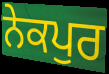
ਨੇਕਪੁਰ